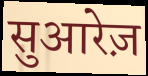
सुआरेज़